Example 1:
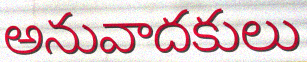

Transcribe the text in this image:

అనువాదకులు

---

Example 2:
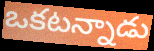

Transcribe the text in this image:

ఒకటన్నాడు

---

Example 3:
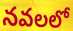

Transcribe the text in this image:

నవలలో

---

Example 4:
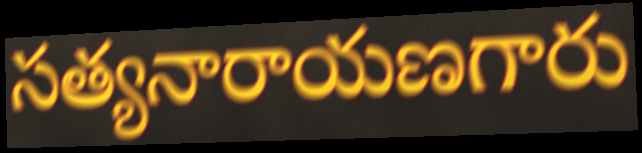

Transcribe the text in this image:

సత్యనారాయణగారు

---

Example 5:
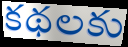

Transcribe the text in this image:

కథలకు